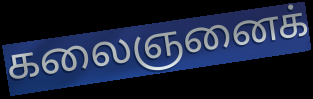
கலைஞனைக்